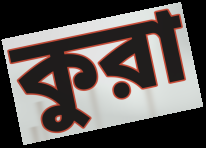
কুরা